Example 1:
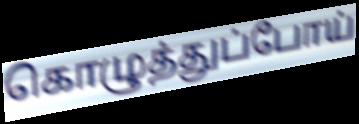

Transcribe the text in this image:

கொழுத்துப்போய்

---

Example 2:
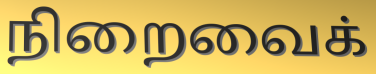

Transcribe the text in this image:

நிறைவைக்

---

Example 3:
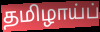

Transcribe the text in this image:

தமிழாய்ப்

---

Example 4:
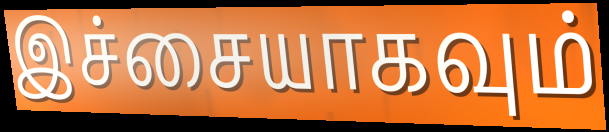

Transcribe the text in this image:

இச்சையாகவும்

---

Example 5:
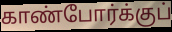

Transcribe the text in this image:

காண்போர்க்குப்